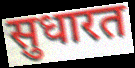
सुधारत